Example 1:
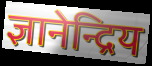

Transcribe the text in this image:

ज्ञानेन्द्रिय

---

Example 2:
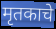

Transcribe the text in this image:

मृतकाचे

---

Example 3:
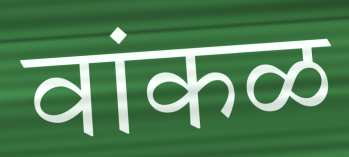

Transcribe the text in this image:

वांकळ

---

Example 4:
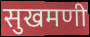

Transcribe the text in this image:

सुखमणी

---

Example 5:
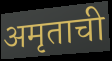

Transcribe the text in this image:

अमृताची